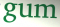
gum